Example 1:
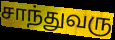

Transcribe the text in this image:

சாந்துவரு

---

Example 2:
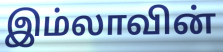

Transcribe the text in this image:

இம்லாவின்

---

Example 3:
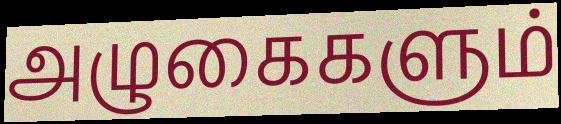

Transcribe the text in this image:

அழுகைகளும்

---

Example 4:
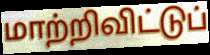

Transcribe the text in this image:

மாற்றிவிட்டுப்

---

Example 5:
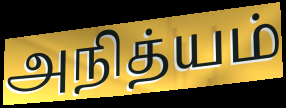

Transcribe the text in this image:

அநித்யம்